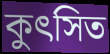
কুৎসিত